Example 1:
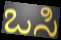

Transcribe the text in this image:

ಒಸಿ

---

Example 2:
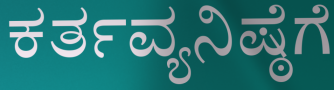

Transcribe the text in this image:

ಕರ್ತವ್ಯನಿಷ್ಠೆಗೆ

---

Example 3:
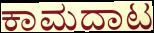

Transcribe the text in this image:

ಕಾಮದಾಟ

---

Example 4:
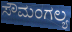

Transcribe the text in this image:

ಸೌಮಂಗಲ್ಯ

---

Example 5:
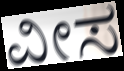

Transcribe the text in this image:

ವೀಸ